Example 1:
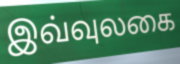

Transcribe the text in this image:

இவ்வுலகை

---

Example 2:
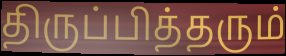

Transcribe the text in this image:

திருப்பித்தரும்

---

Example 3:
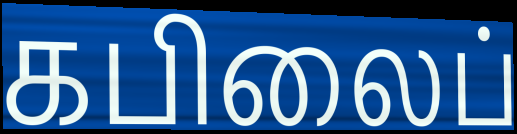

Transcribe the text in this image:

கபிலைப்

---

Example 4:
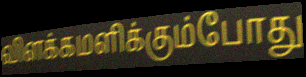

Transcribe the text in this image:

விளக்கமளிக்கும்போது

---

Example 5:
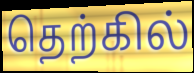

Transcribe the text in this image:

தெற்கில்